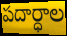
పదార్ధాల